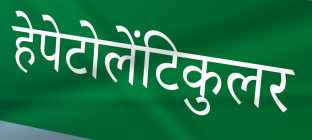
हेपेटोलेंटिकुलर